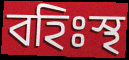
বহিঃস্থ